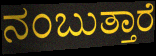
ನಂಬುತ್ತಾರೆ